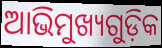
ଆଭିମୁଖ୍ୟଗୁଡ଼ିକ